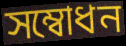
সম্বোধন